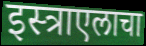
इस्त्राएलाचा